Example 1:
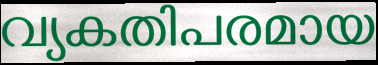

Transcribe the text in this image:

വ്യകതിപരമായ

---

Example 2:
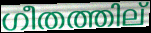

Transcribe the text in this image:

ഗീതത്തില്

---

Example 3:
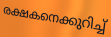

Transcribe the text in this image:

രക്ഷകനെക്കുറിച്ച്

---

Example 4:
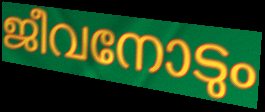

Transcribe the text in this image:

ജീവനോടും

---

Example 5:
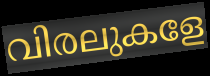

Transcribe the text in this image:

വിരലുകളേ